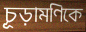
চূড়ামণিকে